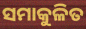
ସମାକୁଳିତ